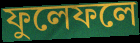
ফুলেফলে